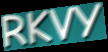
RKVY